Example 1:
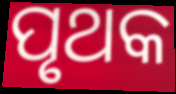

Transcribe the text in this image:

ପୃଥକ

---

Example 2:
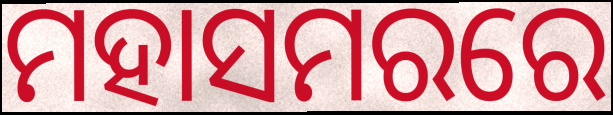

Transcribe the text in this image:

ମହାସମରରେ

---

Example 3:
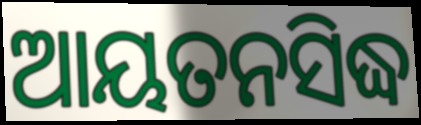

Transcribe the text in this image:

ଆୟତନସିଦ୍ଧ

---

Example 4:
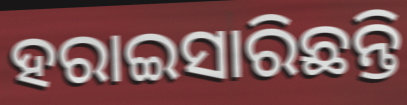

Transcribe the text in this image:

ହରାଇସାରିଛନ୍ତି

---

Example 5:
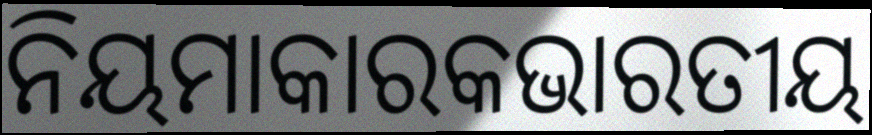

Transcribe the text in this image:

ନିୟମାକାରକଭାରତୀୟ